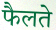
फैलते